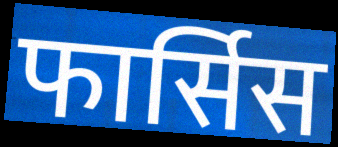
फार्सिस